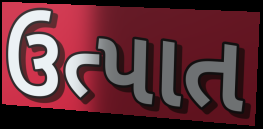
ઉત્પાત